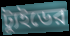
ট্যুইডের